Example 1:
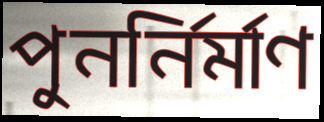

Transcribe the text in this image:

পুনৰ্নিৰ্মাণ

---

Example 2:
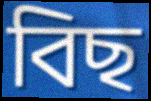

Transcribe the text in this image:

বিছ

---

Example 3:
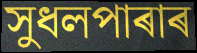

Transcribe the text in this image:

সুধলপাৰাৰ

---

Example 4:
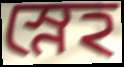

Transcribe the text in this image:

স্নেহ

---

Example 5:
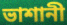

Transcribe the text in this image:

ভাশানী